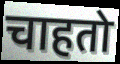
चाहतो